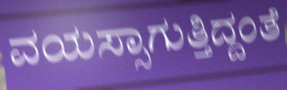
ವಯಸ್ಸಾಗುತ್ತಿದ್ದಂತೆ